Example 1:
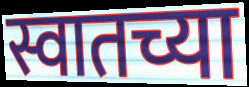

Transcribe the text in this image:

स्वातच्या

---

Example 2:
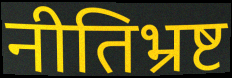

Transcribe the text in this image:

नीतिभ्रष्ट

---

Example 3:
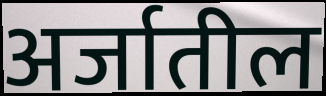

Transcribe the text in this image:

अर्जातील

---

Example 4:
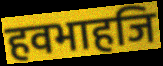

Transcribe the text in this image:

हवभाहजि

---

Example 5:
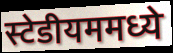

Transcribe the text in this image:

स्टेडीयममध्ये